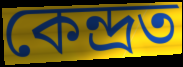
কেন্দ্ৰত